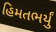
હિમતભર્યું